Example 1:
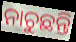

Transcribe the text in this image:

ନାଚୁଛନ୍ତି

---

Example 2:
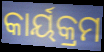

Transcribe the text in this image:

କାର୍ୟକ୍ରମ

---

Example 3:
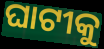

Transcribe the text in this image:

ଘାଟୀକୁ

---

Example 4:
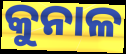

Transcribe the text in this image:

କୁନାଳ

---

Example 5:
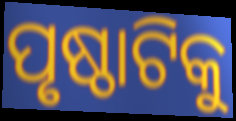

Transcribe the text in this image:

ପୃଷ୍ଠାଟିକୁ